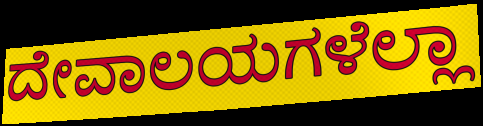
ದೇವಾಲಯಗಳೆಲ್ಲಾ